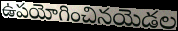
ఉపయోగించినయెడల